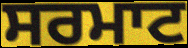
ਸਰਮਾਟ